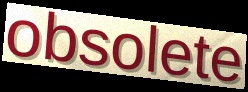
obsolete